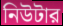
নিউটার